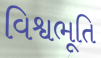
વિશ્વભૂતિ